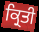
ਕ੍ਰਿਤੀ